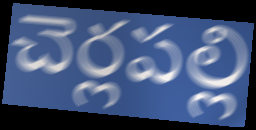
చెర్లపల్లి